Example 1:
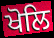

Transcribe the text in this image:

ਖੋਲਿ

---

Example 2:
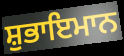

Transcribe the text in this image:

ਸ਼ੁਭਾਇਮਾਨ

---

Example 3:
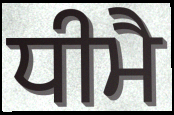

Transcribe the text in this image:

ਧੀਮੈ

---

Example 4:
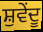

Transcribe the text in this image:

ਸ਼ੁਵੇਂਦੂ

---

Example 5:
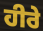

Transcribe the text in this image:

ਹੀਰੇ